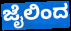
ಜೈಲಿಂದ